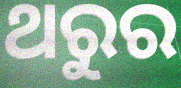
ଥରୁର